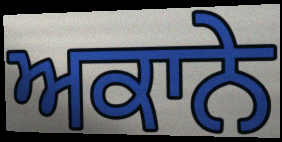
ਅਕਾਨੇ